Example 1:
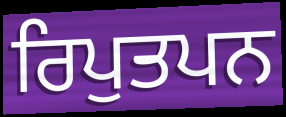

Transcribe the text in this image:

ਰਿਪੁਤਪਨ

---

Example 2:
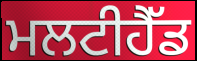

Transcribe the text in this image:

ਮਲਟੀਹੈੱਡ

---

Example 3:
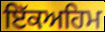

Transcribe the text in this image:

ਇੱਕਅਹਿਮ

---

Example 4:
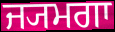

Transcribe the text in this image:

ਜ੍ਯਮਗਾ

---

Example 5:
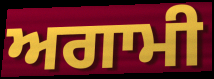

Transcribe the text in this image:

ਅਗਾਮੀ